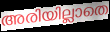
അരിയില്ലാതെ